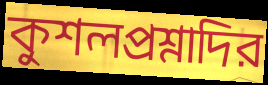
কুশলপ্রশ্নাদির